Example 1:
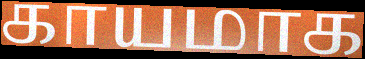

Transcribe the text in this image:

காயமாக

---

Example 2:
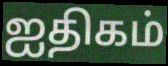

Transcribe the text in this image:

ஐதிகம்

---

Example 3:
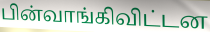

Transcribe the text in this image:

பின்வாங்கிவிட்டன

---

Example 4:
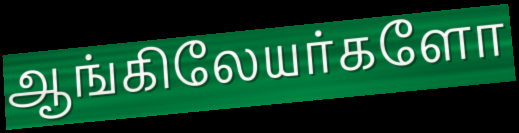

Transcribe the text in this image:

ஆங்கிலேயர்களோ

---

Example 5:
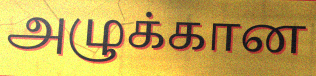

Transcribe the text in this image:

அழுக்கான